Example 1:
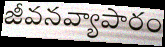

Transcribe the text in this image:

జీవనవ్యాపారం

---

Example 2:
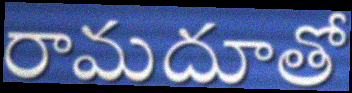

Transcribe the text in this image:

రామదూతో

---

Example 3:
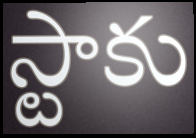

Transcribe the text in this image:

స్టాకు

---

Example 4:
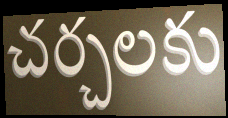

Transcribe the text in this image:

చర్చలకు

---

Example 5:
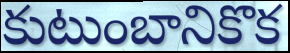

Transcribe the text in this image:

కుటుంబానికొక